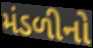
મંડળીનો